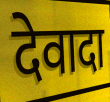
देवादा